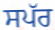
ਸਪੱਰ